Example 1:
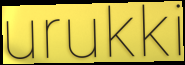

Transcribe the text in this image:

urukki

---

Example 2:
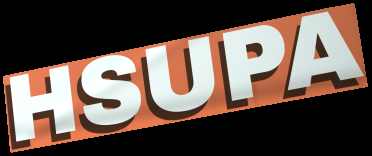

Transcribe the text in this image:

HSUPA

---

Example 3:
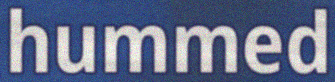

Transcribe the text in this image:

hummed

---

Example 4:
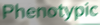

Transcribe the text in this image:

Phenotypic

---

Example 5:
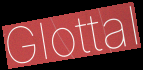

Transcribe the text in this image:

Glottal